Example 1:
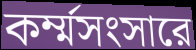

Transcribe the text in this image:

কর্ম্মসংসারে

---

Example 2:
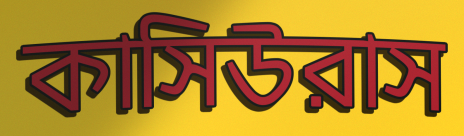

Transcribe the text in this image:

কাসিউরাস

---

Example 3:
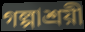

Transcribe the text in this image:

গল্পাশ্রয়ী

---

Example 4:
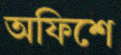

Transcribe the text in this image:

অফিশে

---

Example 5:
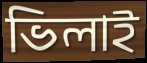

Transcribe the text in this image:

ভিলাই